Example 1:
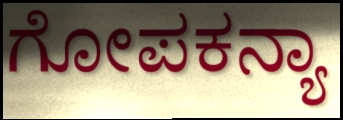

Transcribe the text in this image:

ಗೋಪಕನ್ಯಾ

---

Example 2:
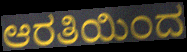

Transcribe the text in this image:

ಆರತಿಯಿಂದ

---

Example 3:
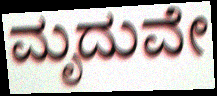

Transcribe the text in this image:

ಮೃದುವೇ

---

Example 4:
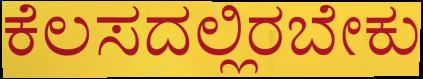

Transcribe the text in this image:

ಕೆಲಸದಲ್ಲಿರಬೇಕು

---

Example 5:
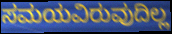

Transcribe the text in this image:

ಸಮಯವಿರುವುದಿಲ್ಲ